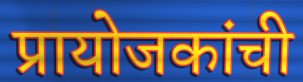
प्रायोजकांची